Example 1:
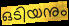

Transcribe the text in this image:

ഒടിയനും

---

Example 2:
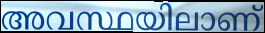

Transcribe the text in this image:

അവസ്ഥയിലാണ്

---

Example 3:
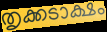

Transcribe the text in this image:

തൃക്കടാക്ഷം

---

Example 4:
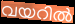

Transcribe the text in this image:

വയറിൽ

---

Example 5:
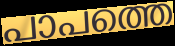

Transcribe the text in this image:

പാപത്തെ